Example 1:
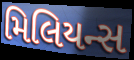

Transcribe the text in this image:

મિલિયન્સ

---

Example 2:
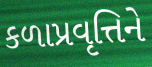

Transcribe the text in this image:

કળાપ્રવૃત્તિને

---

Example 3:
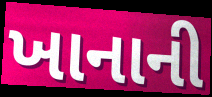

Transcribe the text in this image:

ખાનાની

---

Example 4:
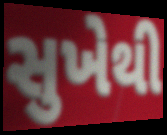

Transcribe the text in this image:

સુખેથી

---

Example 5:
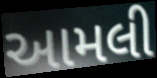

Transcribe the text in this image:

આમલી